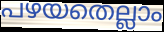
പഴയതെല്ലാം